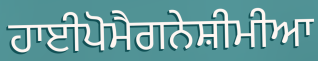
ਹਾਈਪੋਮੈਗਨੇਸ਼ੀਮੀਆ